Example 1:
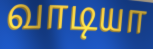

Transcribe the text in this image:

வாடியா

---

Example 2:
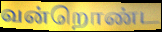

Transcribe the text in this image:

வன்றொண்ட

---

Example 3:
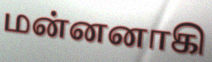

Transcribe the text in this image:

மன்னனாகி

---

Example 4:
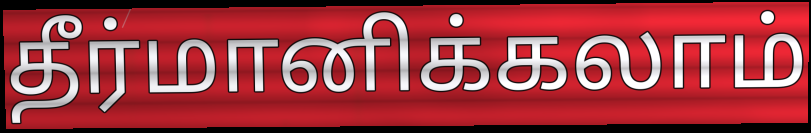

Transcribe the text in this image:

தீர்மானிக்கலாம்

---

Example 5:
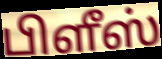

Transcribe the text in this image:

பிளீஸ்